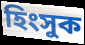
হিংসুক